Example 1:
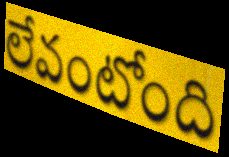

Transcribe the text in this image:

లేవంటోంది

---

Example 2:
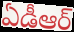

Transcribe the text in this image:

ఏడీఆర్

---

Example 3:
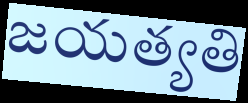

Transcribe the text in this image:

జయత్యతి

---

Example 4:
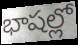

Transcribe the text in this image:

భాషల్లో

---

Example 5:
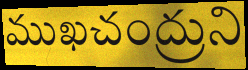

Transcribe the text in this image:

ముఖచంద్రుని